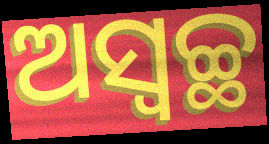
ଅସ୍ଵଚ୍ଛ